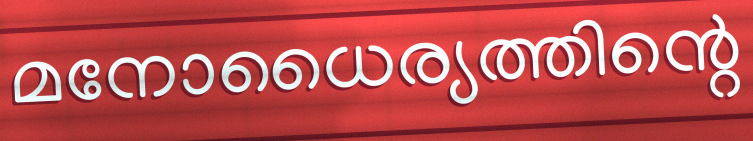
മനോധൈര്യത്തിന്റെ